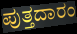
ಪುತ್ತದಾರಂ